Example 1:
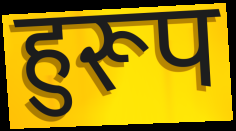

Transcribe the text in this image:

हुरूप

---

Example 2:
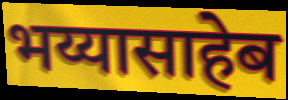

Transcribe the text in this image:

भय्यासाहेब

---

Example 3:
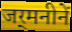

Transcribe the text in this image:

जर्मनीनें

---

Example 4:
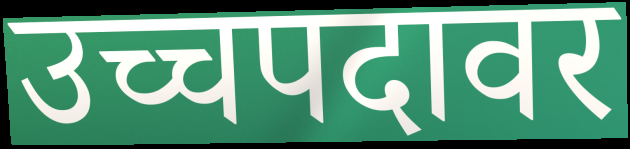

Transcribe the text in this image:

उच्चपदावर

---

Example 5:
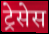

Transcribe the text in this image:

ट्रेसेस